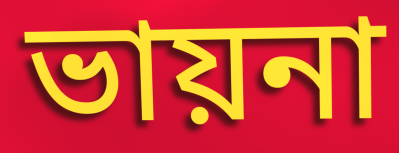
ভায়না